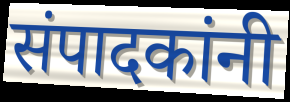
संपादकांनी